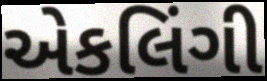
એકલિંગી